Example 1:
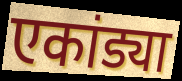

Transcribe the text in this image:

एकांड्या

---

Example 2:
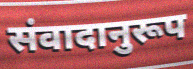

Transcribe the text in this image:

संवादानुरूप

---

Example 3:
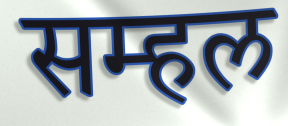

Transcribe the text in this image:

सम्हल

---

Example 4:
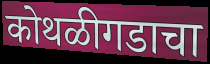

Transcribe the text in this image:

कोथळीगडाचा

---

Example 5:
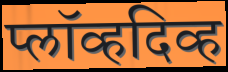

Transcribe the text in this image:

प्लॉव्हदिव्ह